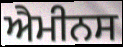
ਐਮੀਨਸ